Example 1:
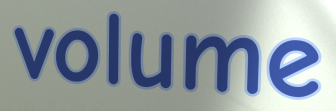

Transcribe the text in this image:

volume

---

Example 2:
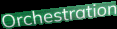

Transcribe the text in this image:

Orchestration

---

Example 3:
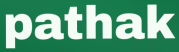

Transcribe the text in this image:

pathak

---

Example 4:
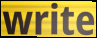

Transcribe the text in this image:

write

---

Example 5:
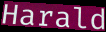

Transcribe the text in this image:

Harald